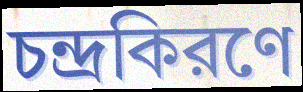
চন্দ্রকিরণে